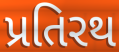
પ્રતિરથ